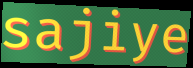
sajiye